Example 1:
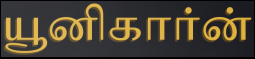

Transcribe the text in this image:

யூனிகார்ன்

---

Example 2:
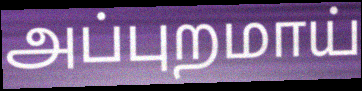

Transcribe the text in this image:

அப்புறமாய்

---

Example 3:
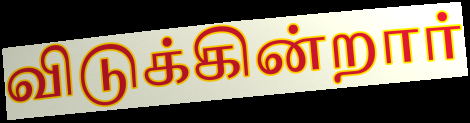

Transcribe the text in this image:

விடுக்கின்றார்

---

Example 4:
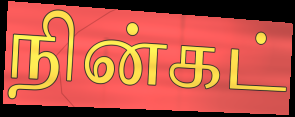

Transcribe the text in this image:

நின்கட்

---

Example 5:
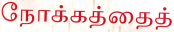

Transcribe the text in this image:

நோக்கத்தைத்